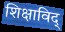
शिक्षाविद्